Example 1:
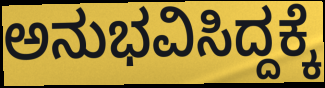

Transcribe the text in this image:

ಅನುಭವಿಸಿದ್ದಕ್ಕೆ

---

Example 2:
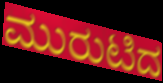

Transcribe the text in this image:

ಮುರುಟಿದ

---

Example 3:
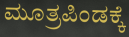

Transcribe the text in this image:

ಮೂತ್ರಪಿಂಡಕ್ಕೆ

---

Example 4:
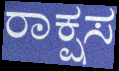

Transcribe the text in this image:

ರಾಕ್ಷಸ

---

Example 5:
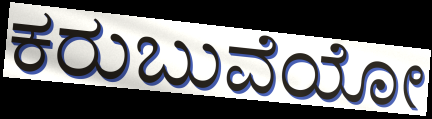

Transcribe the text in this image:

ಕರುಬುವೆಯೋ